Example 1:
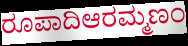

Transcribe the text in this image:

ರೂಪಾದಿಆರಮ್ಮಣಂ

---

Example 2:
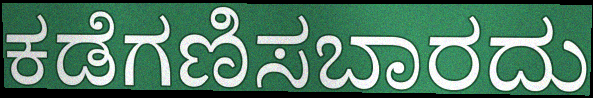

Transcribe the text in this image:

ಕಡೆಗಣಿಸಬಾರದು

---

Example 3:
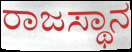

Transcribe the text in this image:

ರಾಜಸ್ಥಾನ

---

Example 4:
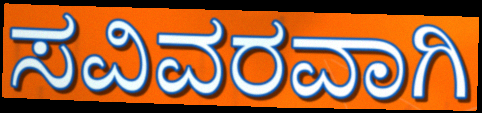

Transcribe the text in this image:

ಸವಿವರವಾಗಿ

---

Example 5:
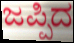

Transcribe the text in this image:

ಜಪ್ಪಿದ